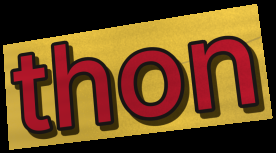
thon